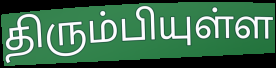
திரும்பியுள்ள